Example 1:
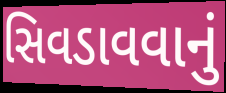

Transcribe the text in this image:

સિવડાવવાનું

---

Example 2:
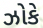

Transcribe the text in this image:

ઝોકે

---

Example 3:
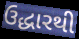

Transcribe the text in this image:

ઉદ્ધારથી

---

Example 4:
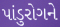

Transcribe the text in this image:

પાંડુરોગને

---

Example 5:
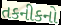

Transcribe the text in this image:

તકનીકનો